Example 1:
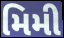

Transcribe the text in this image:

મિમી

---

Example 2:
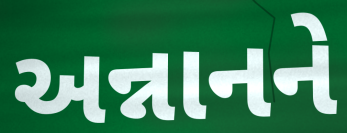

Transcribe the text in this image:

અન્નાનને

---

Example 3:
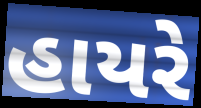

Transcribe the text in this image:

હાયરે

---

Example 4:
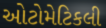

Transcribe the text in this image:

ઓટોમેટિકલી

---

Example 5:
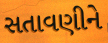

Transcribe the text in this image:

સતાવણીને